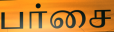
பர்சை